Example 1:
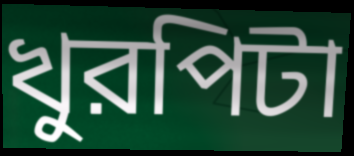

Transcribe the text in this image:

খুরপিটা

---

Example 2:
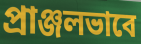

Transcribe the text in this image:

প্রাঞ্জলভাবে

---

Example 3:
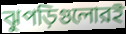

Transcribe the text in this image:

ঝুপড়িগুলোরই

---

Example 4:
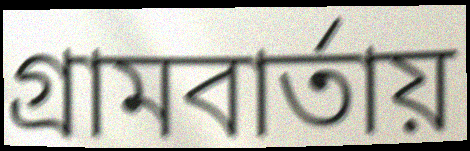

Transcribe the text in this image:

গ্রামবার্তায়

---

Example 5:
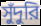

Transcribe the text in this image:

সুঁদুরি